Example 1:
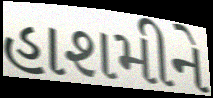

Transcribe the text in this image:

હાશમીને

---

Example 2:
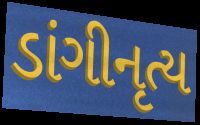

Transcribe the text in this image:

ડાંગીનૃત્ય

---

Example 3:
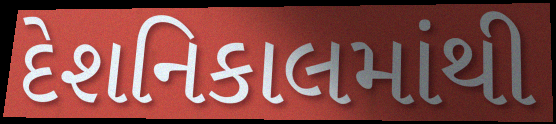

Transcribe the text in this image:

દેશનિકાલમાંથી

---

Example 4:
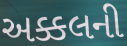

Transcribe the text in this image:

અક્કલની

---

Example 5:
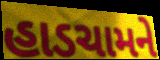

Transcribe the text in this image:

હાડચામને